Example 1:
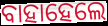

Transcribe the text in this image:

ବାହାହେଲେ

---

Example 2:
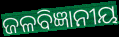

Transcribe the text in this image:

ଜଳବିଜ୍ଞାନୀୟ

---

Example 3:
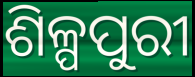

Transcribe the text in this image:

ଶିଳ୍ପପୁରୀ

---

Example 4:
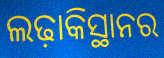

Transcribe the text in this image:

ଲଢ଼ାକିସ୍ଥାନର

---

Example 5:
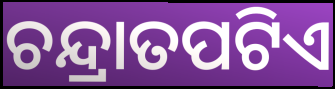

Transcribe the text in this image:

ଚନ୍ଦ୍ରାତପଟିଏ